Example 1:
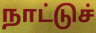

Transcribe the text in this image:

நாட்டுச்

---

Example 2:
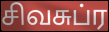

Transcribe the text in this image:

சிவசுப்ர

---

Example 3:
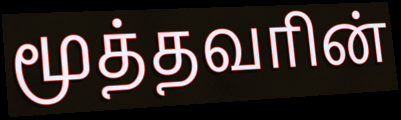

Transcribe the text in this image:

மூத்தவரின்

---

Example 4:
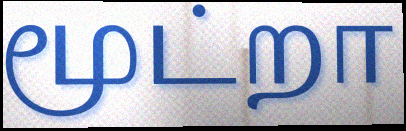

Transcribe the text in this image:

மூட்றா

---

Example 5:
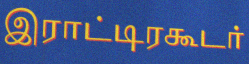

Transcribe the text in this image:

இராட்டிரகூடர்